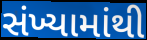
સંખ્યામાંથી